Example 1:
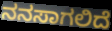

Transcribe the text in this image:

ನನಸಾಗಲಿದೆ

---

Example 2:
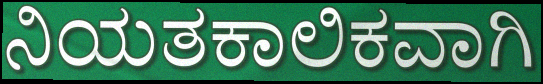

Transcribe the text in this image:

ನಿಯತಕಾಲಿಕವಾಗಿ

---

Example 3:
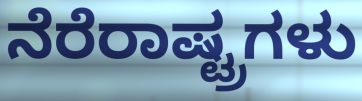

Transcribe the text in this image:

ನೆರೆರಾಷ್ಟ್ರಗಳು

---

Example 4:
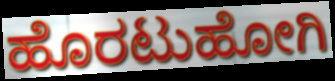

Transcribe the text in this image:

ಹೊರಟುಹೋಗಿ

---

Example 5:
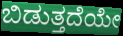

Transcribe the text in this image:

ಬಿಡುತ್ತದೆಯೇ